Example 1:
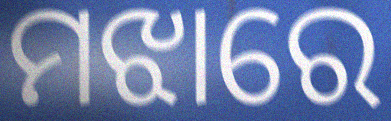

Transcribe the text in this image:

ମଝାରେ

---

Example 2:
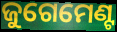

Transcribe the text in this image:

ଜୁଗେମେଣ୍ଟ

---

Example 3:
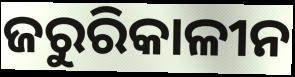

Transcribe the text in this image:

ଜରୁରିକାଳୀନ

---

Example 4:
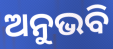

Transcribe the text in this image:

ଅନୁଭବି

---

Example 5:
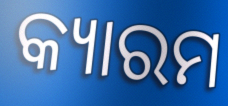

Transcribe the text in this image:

କ୍ୟାରମ